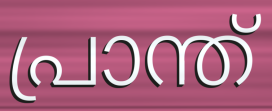
പ്രാന്ത്